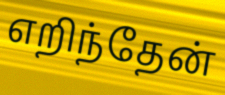
எறிந்தேன்